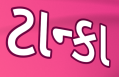
ટાન્કા